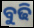
ବୁଢି